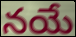
నయే